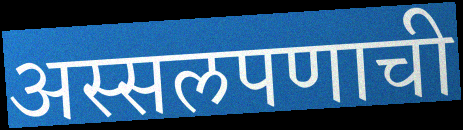
अस्सलपणाची